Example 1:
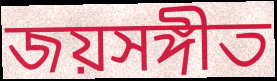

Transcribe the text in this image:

জয়সঙ্গীত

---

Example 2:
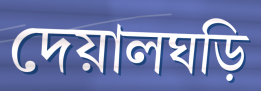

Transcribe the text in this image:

দেয়ালঘড়ি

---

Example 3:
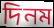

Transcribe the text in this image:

দিনম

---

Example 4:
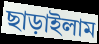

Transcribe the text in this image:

ছাড়াইলাম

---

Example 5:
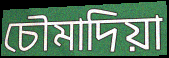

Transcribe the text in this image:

চৌমাদিয়া